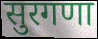
सुरगणा